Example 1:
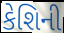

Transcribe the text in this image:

કેશિની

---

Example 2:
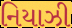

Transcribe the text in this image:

નિયાઝી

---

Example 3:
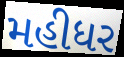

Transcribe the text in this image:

મહીધર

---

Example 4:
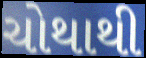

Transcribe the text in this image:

ચોથાથી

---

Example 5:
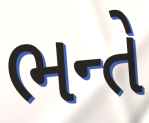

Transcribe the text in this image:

ભન્તે